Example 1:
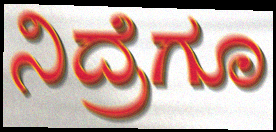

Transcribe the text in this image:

ನಿದ್ರೆಗೂ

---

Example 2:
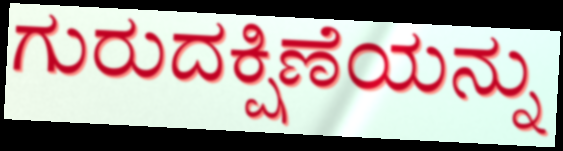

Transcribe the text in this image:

ಗುರುದಕ್ಷಿಣೆಯನ್ನು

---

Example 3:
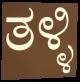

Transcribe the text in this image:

ತಳ್ಳಿ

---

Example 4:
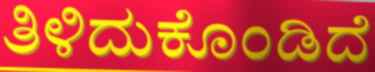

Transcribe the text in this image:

ತಿಳಿದುಕೊಂಡಿದೆ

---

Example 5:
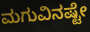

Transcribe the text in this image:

ಮಗುವಿನಷ್ಟೇ